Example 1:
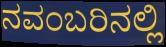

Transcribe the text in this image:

ನವಂಬರಿನಲ್ಲಿ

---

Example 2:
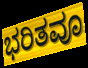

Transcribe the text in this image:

ಭರಿತವೂ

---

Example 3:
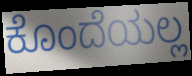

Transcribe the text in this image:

ಕೊಂದೆಯಲ್ಲ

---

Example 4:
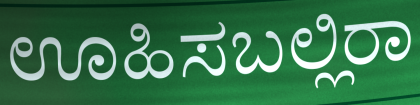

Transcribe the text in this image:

ಊಹಿಸಬಲ್ಲಿರಾ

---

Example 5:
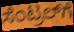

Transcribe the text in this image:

ಸೆಂಟ್ರಲ್‌ಗೆ